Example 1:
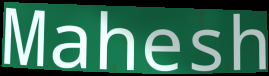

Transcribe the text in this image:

Mahesh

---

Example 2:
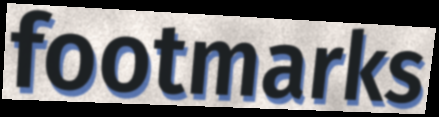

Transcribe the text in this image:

footmarks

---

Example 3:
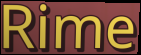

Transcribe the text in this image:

Rime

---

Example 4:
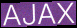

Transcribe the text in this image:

AJAX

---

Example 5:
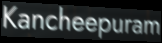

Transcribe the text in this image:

Kancheepuram